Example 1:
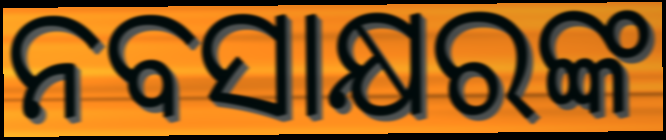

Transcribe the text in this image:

ନବସାକ୍ଷରଙ୍କ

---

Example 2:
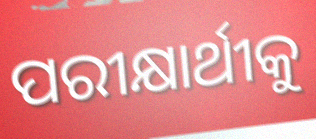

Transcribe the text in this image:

ପରୀକ୍ଷାର୍ଥୀକୁ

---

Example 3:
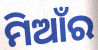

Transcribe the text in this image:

ମିଆଁର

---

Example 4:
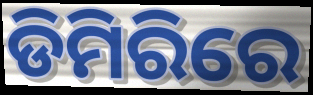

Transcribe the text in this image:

ଡିମିରିରେ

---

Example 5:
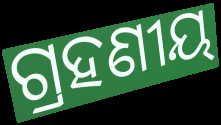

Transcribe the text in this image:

ଗ୍ରହଣୀୟ